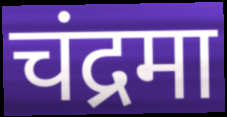
चंद्रमा